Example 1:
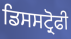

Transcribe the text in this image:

ਡਿਸਸਟ੍ਰੋਫੀ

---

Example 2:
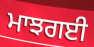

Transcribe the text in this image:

ਮਾਝਗਈ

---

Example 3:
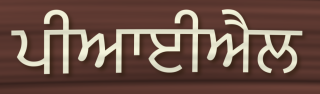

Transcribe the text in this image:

ਪੀਆਈਐਲ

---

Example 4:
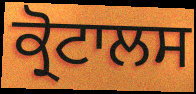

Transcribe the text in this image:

ਕ੍ਰੋਟਾਲਸ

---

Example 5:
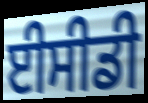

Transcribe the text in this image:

ਈਸੀਡੀ